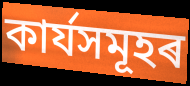
কাৰ্যসমূহৰ